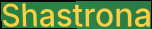
Shastrona